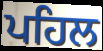
ਪਹਿਲ